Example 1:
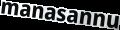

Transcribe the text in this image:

manasannu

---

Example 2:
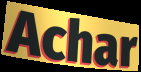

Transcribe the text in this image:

Achar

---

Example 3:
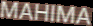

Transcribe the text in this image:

MAHIMA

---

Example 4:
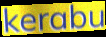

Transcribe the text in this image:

kerabu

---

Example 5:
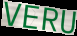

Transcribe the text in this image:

VERU